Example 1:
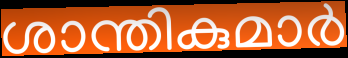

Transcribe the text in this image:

ശാന്തികുമാർ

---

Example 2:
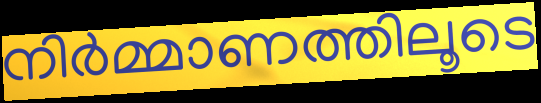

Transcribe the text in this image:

നിർമ്മാണത്തിലൂടെ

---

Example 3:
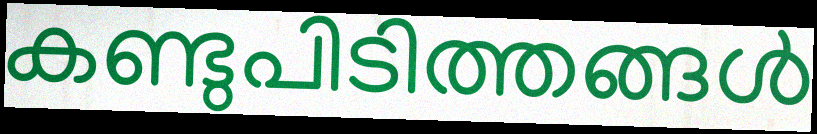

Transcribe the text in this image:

കണ്ടുപിടിത്തങ്ങൾ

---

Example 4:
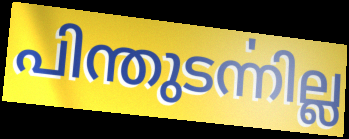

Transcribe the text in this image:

പിന്തുടൎന്നില്ല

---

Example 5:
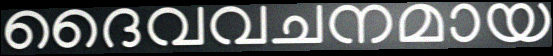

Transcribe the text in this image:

ദൈവവചനമായ